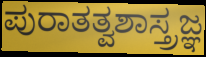
ಪುರಾತತ್ವಶಾಸ್ತ್ರಜ್ಞ